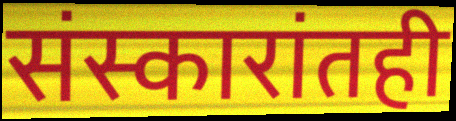
संस्कारांतही